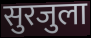
सुरजुला